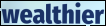
wealthier